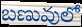
బణువులో